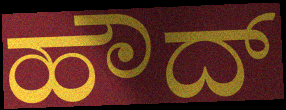
ಹೌದ್